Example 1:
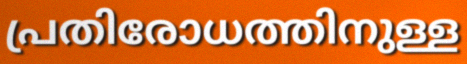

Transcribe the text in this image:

പ്രതിരോധത്തിനുള്ള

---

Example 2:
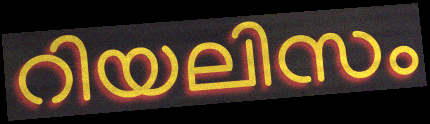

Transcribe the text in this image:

റിയലിസം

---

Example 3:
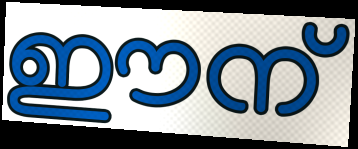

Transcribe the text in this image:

ഈന്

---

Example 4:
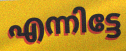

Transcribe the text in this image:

എന്നിട്ടേ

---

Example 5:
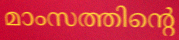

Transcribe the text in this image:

മാംസത്തിന്റെ